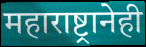
महाराष्ट्रानेही